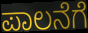
ಪಾಲನೆಗೆ